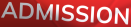
ADMISSION